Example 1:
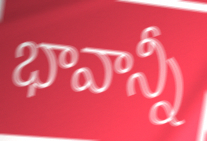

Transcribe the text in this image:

భావాన్నీ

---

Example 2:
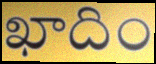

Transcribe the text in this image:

ఖాదిం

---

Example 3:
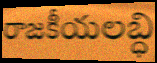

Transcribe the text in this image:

రాజకీయలబ్ధి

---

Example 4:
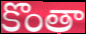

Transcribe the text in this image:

కొంతా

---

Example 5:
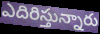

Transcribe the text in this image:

ఎదిరిస్తున్నారు